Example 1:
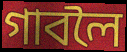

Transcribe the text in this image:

গাবলৈ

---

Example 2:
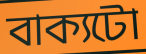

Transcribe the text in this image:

বাক্যটো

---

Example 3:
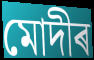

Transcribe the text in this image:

মোদীৰ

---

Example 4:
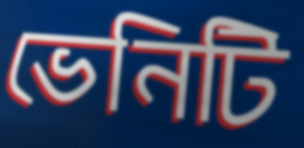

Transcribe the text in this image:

ভেনিটি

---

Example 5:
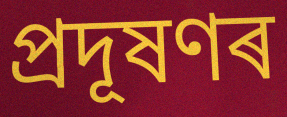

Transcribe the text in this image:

প্ৰদূষণৰ